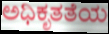
ಅಧಿಕೃತತೆಯ